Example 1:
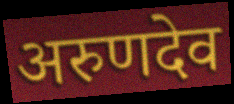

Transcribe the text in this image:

अरुणदेव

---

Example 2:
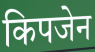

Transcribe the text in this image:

किपजेन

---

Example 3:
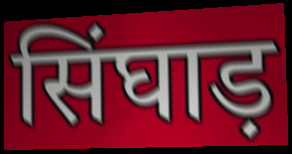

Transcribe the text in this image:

सिंघाड़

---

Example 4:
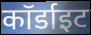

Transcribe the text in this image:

कॉर्डाइट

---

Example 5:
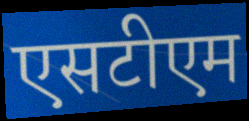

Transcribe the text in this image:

एसटीएम